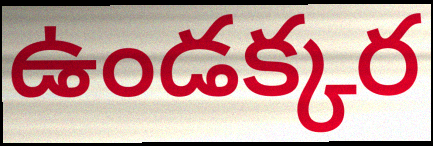
ఉండక్కర